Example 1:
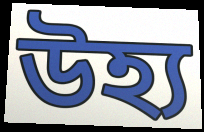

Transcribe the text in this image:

উহ্য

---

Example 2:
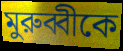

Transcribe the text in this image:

মুরুব্বীকে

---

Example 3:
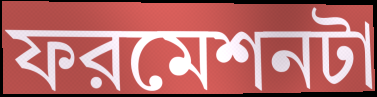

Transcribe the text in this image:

ফরমেশনটা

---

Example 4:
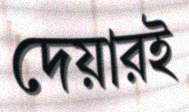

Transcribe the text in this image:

দেয়ারই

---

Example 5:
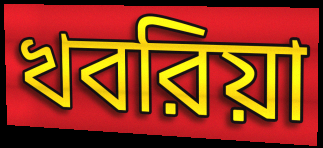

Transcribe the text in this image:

খবরিয়া